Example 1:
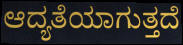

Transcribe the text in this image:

ಆದ್ಯತೆಯಾಗುತ್ತದೆ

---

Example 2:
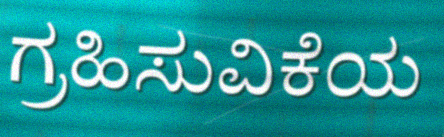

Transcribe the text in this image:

ಗ್ರಹಿಸುವಿಕೆಯ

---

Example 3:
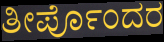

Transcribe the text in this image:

ತೀರ್ಪೊಂದರ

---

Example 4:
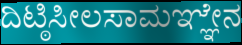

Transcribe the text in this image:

ದಿಟ್ಠಿಸೀಲಸಾಮಞ್ಞೇನ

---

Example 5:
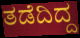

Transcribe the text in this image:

ತಡೆದಿದ್ದ